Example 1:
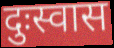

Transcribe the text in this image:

दुःस्वास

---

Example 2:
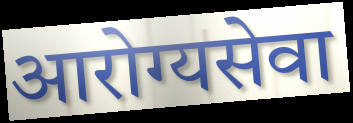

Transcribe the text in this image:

आरोग्यसेवा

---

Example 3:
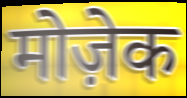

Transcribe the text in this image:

मोज़ेक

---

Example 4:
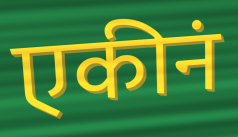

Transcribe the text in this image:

एकीनं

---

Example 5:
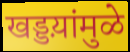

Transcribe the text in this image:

खड्डय़ांमुळे